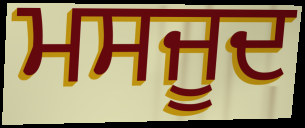
ਮਸਜੂਦ